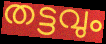
തട്ടവും